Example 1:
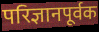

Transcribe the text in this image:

परिज्ञानपूर्वक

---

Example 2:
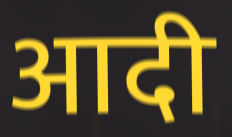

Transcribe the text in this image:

आदी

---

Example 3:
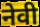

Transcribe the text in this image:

नेवी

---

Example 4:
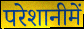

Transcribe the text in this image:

परेशानीमें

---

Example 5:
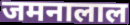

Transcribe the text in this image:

जमनालाल